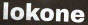
lokone